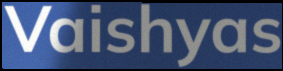
Vaishyas